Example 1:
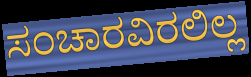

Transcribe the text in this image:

ಸಂಚಾರವಿರಲಿಲ್ಲ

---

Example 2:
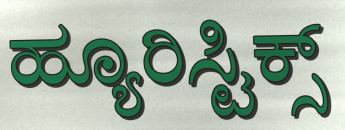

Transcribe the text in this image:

ಹ್ಯೂರಿಸ್ಟಿಕ್ಸ್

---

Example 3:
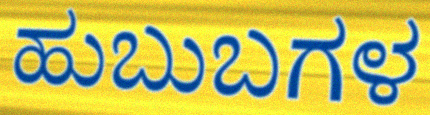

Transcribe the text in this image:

ಹುಬುಬಗಳ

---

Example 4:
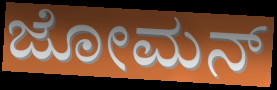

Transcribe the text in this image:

ಜೋಮನ್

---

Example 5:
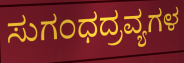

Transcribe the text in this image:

ಸುಗಂಧದ್ರವ್ಯಗಳ